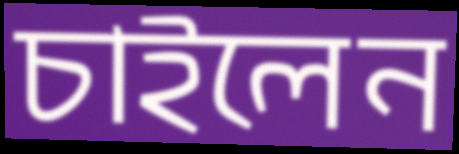
চাইলেন